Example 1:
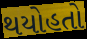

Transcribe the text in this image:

થયોહતો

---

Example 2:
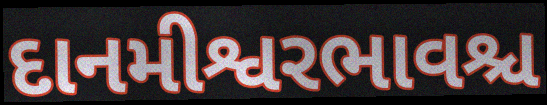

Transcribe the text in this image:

દાનમીશ્વરભાવશ્ચ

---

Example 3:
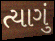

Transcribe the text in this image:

ત્યાગું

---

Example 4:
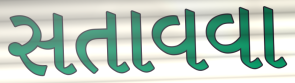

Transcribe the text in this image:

સતાવવા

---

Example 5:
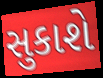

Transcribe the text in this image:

સુકાશે